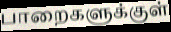
பாறைகளுக்குள்